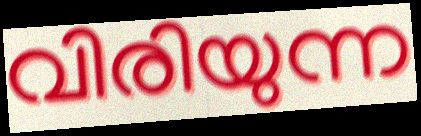
വിരിയുന്ന